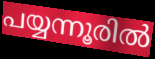
പയ്യന്നൂരിൽ